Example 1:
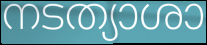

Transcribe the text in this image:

നടത്യാശാ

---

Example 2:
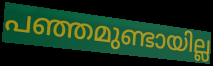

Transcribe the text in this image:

പഞ്ഞമുണ്ടായില്ല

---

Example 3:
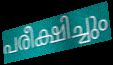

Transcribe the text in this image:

പരീക്ഷിച്ചും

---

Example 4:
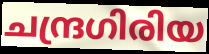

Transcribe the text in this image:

ചന്ദ്രഗിരിയ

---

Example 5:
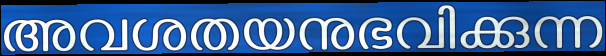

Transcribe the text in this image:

അവശതയനുഭവിക്കുന്ന